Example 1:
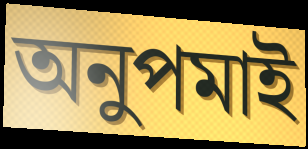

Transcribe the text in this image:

অনুপমাই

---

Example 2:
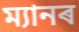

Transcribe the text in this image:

ম্যানৰ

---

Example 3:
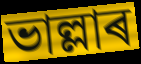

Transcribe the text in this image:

ভাল্লাৰ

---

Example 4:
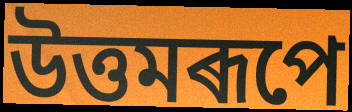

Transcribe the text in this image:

উত্তমৰূপে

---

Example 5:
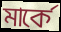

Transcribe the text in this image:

মাৰ্কে